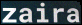
zaira